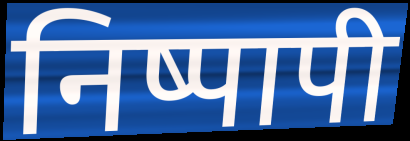
निष्पापी